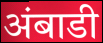
अंबाडी